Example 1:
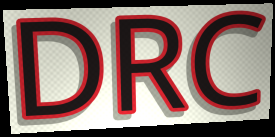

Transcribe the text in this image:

DRC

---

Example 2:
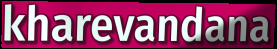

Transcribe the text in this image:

kharevandana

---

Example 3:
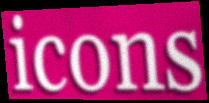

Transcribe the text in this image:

icons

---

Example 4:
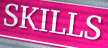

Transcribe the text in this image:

SKILLS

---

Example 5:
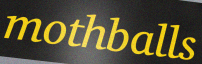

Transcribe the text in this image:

mothballs